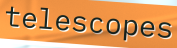
telescopes